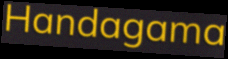
Handagama